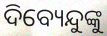
ଦିବ୍ୟେନ୍ଦୁଙ୍କୁ